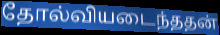
தோல்வியடைந்ததன்